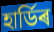
হাৰ্ডিৰ